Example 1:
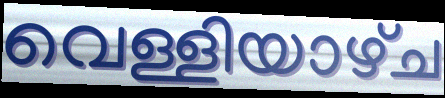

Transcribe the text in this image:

വെള്ളിയാഴ്‌ച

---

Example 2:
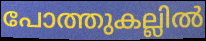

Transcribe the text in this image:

പോത്തുകല്ലിൽ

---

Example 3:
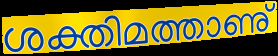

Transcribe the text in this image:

ശക്തിമത്താണു്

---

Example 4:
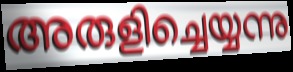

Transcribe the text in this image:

അരുളിച്ചെയ്യന്നു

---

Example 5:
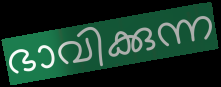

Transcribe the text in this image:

ഭാവിക്കുന്ന